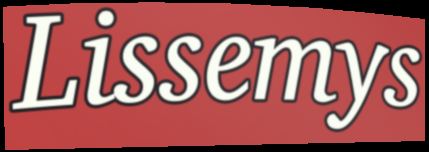
Lissemys